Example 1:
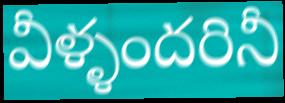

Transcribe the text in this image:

వీళ్ళందరినీ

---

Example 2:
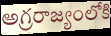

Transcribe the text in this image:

అగ్రరాజ్యంలోకి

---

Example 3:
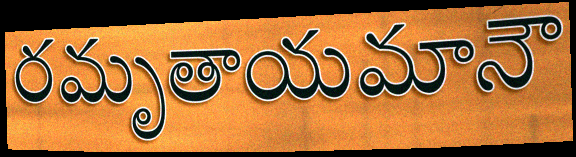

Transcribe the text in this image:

రమృతాయమానౌ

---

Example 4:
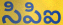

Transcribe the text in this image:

సిపిఐ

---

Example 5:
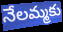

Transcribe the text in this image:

నేలమ్మకు